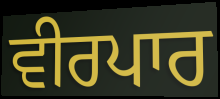
ਵੀਰਪਾਰ